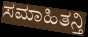
ಸಮಾಹಿತನ್ತಿ